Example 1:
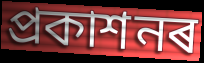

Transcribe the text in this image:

প্ৰকাশনৰ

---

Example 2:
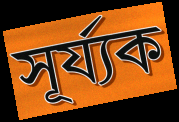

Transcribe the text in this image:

সূৰ্য্যক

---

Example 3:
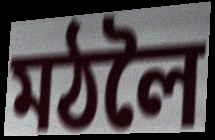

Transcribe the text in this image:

মঠলৈ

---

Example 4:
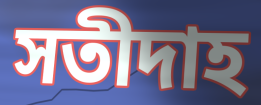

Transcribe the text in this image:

সতীদাহ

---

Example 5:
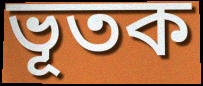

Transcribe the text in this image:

ভূতক